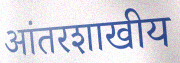
आंतरशाखीय